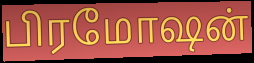
பிரமோஷன்